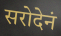
सरोदेनं